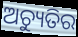
ଅଚ୍ୟୁତିର